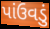
પાંઉવડું